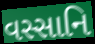
વસ્સાનિ